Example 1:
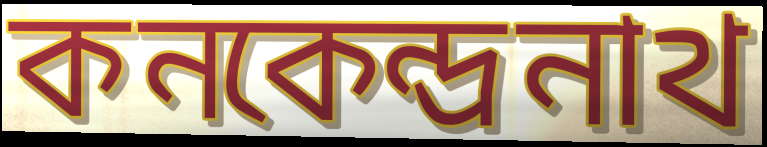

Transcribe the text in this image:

কনকেন্দ্রনাথ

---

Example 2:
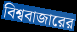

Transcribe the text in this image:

বিশ্ববাজারের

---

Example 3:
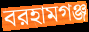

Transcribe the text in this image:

বরহামগঞ্জ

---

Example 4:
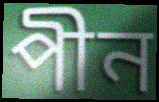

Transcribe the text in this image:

পীন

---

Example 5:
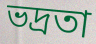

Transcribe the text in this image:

ভদ্রতা